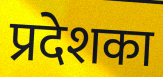
प्रदेशका